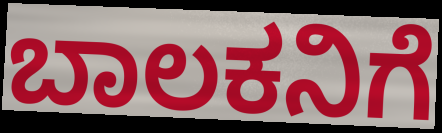
ಬಾಲಕನಿಗೆ